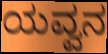
ಯವ್ವನ